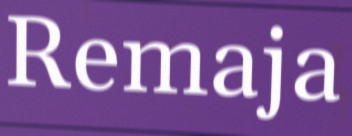
Remaja